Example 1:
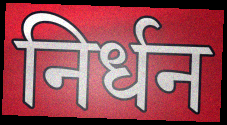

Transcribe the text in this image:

निर्धन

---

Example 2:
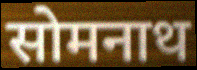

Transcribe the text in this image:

सोमनाथ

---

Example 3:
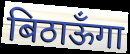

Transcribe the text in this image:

बिठाऊँगा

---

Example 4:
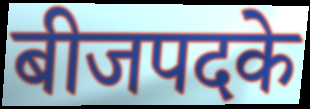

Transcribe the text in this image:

बीजपदके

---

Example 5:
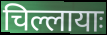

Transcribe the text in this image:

चिल्लायाः